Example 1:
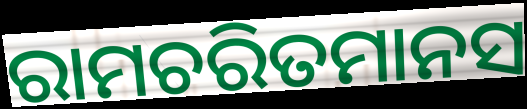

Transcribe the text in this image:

ରାମଚରିତମାନସ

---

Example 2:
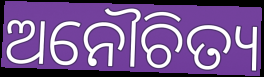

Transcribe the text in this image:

ଅନୌଚିତ୍ୟ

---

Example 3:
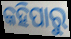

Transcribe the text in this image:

କହିପାରୁ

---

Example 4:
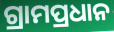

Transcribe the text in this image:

ଗ୍ରାମପ୍ରଧାନ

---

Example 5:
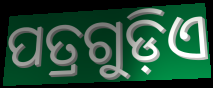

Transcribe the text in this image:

ପତ୍ରଗୁଡ଼ିଏ